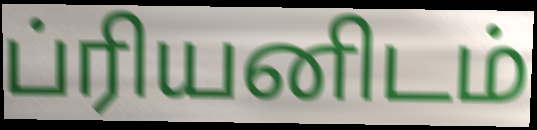
ப்ரியனிடம்